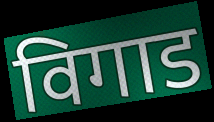
विगाड